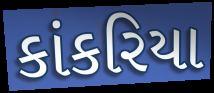
કાંકરિયા